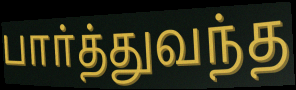
பார்த்துவந்த